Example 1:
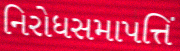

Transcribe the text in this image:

નિરોધસમાપત્તિં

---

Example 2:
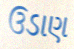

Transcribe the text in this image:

ઉડાણ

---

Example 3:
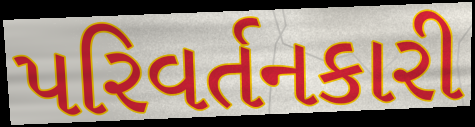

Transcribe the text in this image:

પરિવર્તનકારી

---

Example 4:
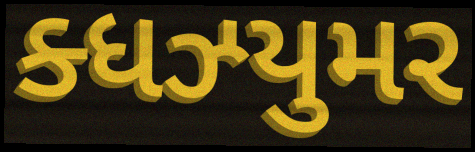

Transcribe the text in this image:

ક્ધઝ્યુમર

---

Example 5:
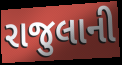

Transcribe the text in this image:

રાજુલાની